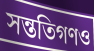
সন্ততিগণও